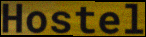
Hostel